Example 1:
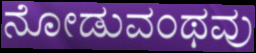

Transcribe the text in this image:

ನೋಡುವಂಥವು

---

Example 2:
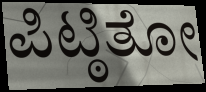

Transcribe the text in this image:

ಪಿಟ್ಠಿತೋ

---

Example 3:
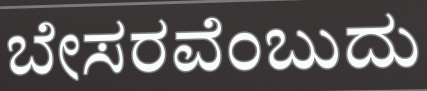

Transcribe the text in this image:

ಬೇಸರವೆಂಬುದು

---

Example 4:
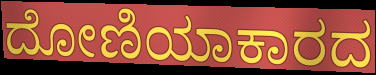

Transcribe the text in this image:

ದೋಣಿಯಾಕಾರದ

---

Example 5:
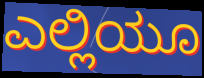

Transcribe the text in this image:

ಎಲ್ಲಿಯೂ